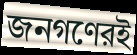
জনগণেরই